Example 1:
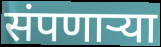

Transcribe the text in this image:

संपणाऱ्या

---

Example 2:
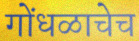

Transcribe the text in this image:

गोंधळाचेच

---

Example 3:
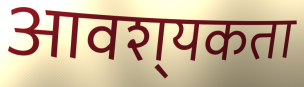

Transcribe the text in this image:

आवश्यकता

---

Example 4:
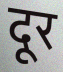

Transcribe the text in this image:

दूर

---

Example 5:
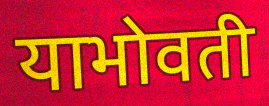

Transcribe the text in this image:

याभोवती